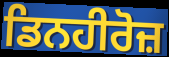
ਡਿਨਹੀਰੋਜ਼